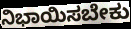
ನಿಭಾಯಿಸಬೇಕು